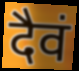
दैवं